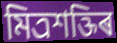
মিত্ৰশক্তিৰ